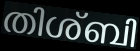
തിശ്ബി